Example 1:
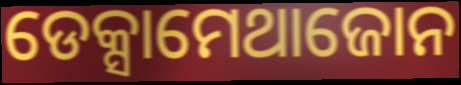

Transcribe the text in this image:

ଡେକ୍ସାମେଥାଜୋନ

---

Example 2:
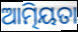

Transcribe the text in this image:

ଆତ୍ମିୟତା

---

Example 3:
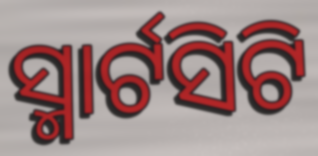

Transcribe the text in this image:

ସ୍ମାର୍ଟସିଟି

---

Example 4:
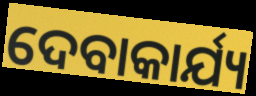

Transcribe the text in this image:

ଦେବାକାର୍ଯ୍ୟ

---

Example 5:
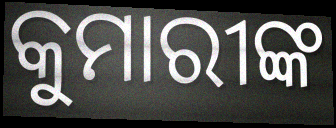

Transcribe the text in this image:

କୁମାରୀଙ୍କ